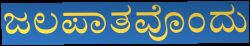
ಜಲಪಾತವೊಂದು